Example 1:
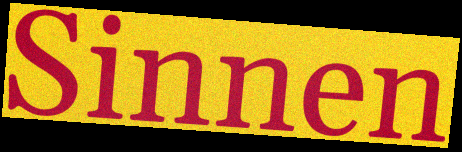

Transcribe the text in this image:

Sinnen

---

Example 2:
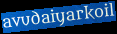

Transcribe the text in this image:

avudaiyarkoil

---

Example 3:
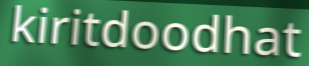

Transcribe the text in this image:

kiritdoodhat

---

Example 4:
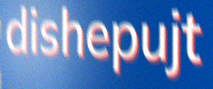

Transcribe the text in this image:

dishepujt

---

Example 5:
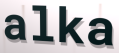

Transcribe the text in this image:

alka